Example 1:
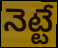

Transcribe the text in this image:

నెట్టే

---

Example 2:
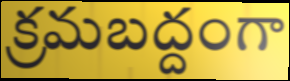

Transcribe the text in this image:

క్రమబద్దంగా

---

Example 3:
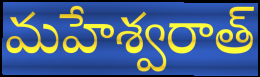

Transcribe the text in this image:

మహేశ్వరాత్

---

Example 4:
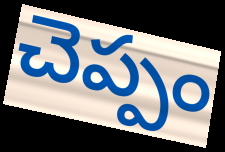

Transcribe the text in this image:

చెప్పం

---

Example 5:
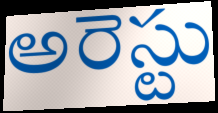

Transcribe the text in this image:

అరెస్టు